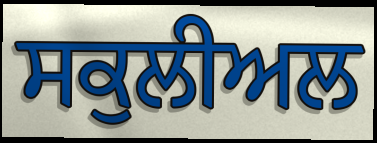
ਸਕੁਲੀਅਲ